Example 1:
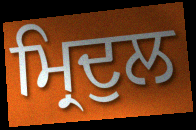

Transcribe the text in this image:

ਮ੍ਰਿਦੁਲ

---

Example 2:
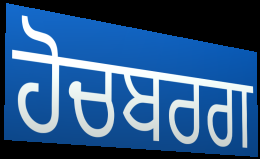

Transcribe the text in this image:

ਹੋਚਬਰਗ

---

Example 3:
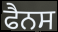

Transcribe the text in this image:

ਫੈਨਸ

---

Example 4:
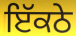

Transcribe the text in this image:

ਇੱਕਠੇ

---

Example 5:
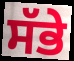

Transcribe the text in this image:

ਸੱਭੇ